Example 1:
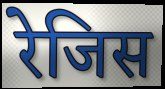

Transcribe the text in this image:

रेजिस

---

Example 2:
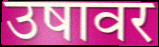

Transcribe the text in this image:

उषावर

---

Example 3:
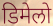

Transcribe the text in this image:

डिमेलो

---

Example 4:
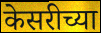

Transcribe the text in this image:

केसरीच्या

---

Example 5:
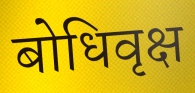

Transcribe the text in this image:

बोधिवृक्ष